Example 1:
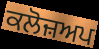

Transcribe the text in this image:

ਕਲੋਜ਼ਅਪ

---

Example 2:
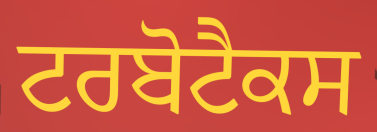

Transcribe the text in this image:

ਟਰਬੋਟੈਕਸ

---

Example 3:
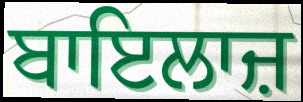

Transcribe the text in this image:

ਬਾਇਲਾਜ਼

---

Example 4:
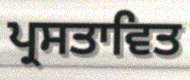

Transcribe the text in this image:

ਪ੍ਰਸਤਾਵਿਤ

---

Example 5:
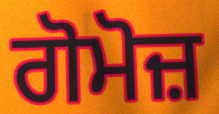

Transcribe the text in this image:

ਗੋਮੋਜ਼